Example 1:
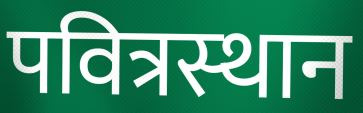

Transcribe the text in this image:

पवित्रस्‍थान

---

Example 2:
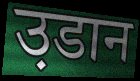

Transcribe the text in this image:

उ़डान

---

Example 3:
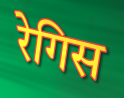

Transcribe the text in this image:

रेगिस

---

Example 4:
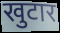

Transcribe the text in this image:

खुटार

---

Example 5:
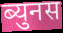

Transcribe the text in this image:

ब्युनस